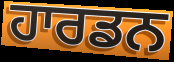
ਹਾਰਡਨ